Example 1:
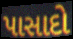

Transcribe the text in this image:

પાસાદો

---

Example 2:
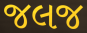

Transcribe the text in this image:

જલજ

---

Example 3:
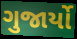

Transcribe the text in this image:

ગુજાર્યો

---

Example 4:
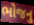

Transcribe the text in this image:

ભોજનુ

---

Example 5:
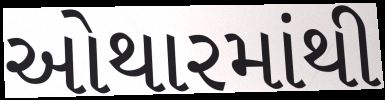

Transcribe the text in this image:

ઓથારમાંથી